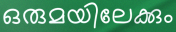
ഒരുമയിലേക്കും